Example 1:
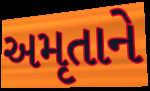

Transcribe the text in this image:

અમૃતાને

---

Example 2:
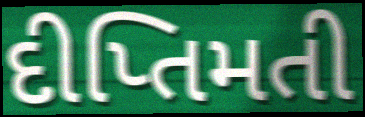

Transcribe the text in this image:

દીપ્તિમતી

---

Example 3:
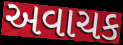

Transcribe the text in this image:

અવાચક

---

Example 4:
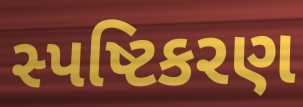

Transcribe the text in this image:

સ્પષ્ટિકરણ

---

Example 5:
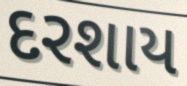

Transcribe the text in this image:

દરશાય